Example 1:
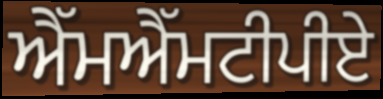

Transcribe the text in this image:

ਐੱਮਐੱਮਟੀਪੀਏ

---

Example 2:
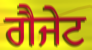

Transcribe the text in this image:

ਗੈਜੇਟ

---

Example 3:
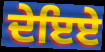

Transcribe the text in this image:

ਦੇਇਏ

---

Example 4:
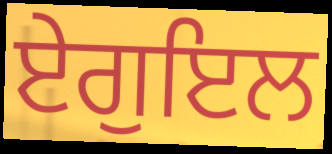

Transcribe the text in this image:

ਏਗੁਇਲ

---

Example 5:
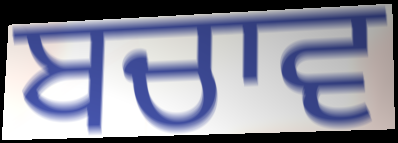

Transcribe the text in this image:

ਬਚਾਵ